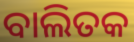
ବାଲିତକ